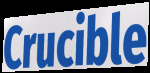
Crucible